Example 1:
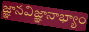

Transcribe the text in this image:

జ్ఞానవిజ్ఞానాభ్యాం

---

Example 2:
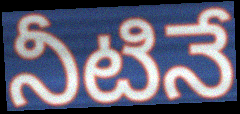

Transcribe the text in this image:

నీటినే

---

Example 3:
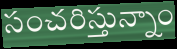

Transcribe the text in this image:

సంచరిస్తున్నాం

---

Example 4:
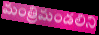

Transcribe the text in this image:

మంత్రిమండలిని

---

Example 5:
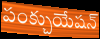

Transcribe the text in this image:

పంక్చుయేషన్